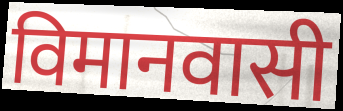
विमानवासी